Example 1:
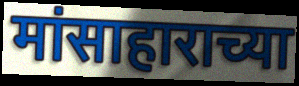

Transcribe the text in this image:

मांसाहाराच्या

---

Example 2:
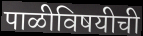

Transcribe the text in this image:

पाळीविषयीची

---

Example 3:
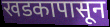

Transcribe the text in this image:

खडकापासून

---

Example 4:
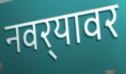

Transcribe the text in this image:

नवर्‍यावर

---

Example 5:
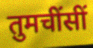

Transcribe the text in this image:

तुमचींसीं